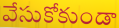
వేసుకోకుండా